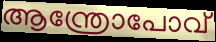
ആന്ത്രോപോവ്